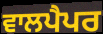
ਵਾਲਪੈਪਰ